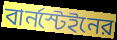
বার্নস্টেইনের